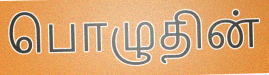
பொழுதின்